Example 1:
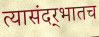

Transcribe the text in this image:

त्यासंदर्भातच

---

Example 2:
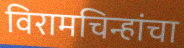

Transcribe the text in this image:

विरामचिन्हांचा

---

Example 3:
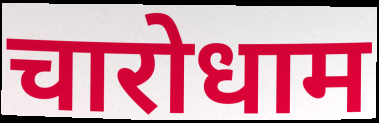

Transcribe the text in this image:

चारोधाम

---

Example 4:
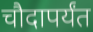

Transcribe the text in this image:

चौदापर्यंत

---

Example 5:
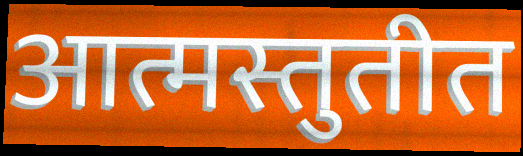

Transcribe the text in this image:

आत्मस्तुतीत